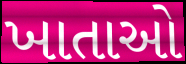
ખાતાઓ